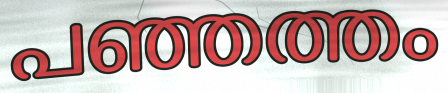
പഞ്ഞത്തം